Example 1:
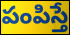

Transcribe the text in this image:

పంపిస్తే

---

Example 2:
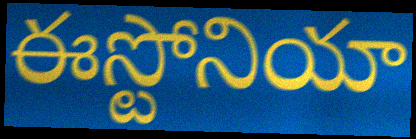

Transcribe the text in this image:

ఈస్టోనియా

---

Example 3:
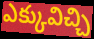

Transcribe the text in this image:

ఎక్కువిచ్చి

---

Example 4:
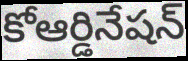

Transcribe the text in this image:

కోఆర్డినేషన్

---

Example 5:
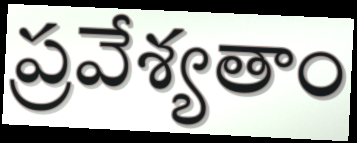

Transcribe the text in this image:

ప్రవేశ్యతాం